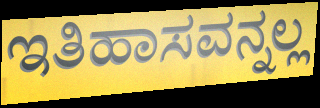
ಇತಿಹಾಸವನ್ನಲ್ಲ